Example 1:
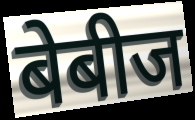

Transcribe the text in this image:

बेबीज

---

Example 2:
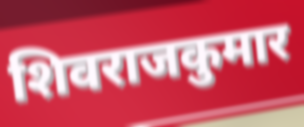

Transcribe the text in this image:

शिवराजकुमार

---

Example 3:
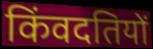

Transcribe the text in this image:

किंवदतियों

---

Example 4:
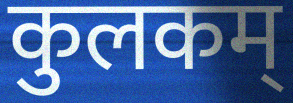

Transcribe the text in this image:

कुलकम्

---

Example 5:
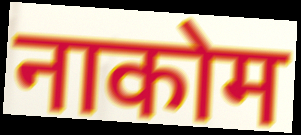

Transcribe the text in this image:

नाकोम